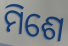
ମିଶେ